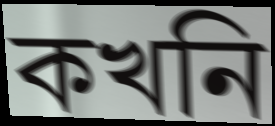
কখনি